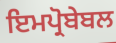
ਇਮਪ੍ਰੋਬੇਬਲ